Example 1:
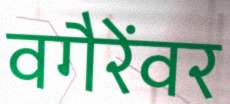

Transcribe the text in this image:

वगैरेंवर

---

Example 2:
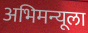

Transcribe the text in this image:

अभिमन्यूला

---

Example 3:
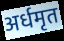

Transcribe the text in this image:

अर्धमृत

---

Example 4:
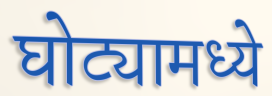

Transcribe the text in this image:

घोट्यामध्ये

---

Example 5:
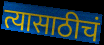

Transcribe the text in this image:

त्यासाठीचं